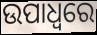
ଉପାଧ୍ଵରେ